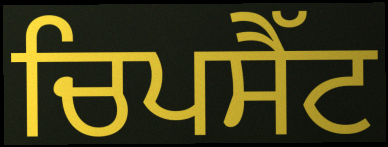
ਚਿਪਸੈੱਟ